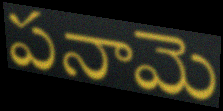
పనామె